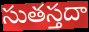
సుతస్తదా